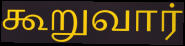
கூறுவார்